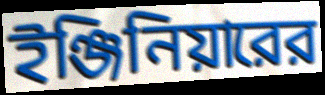
ইঞ্জিনিয়ারের